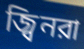
জ্বিনরা